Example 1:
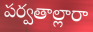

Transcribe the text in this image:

పర్వతాల్లారా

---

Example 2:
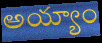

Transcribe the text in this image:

అయ్యాం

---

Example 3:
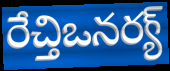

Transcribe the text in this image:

రేచ్తిఒనర్య్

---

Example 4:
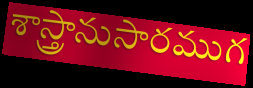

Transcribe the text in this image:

శాస్త్రానుసారముగ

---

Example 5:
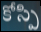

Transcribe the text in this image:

కోస్పి